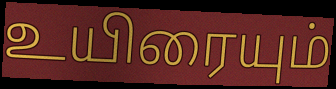
உயிரையும்